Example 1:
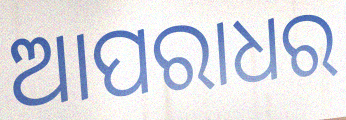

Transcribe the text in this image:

ଆପରାଧର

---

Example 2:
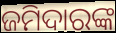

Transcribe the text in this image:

ଜମିଦାରଙ୍କ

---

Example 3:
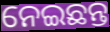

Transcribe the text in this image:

ନେଇଛନ୍ତ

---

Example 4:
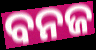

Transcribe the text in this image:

ବନଜ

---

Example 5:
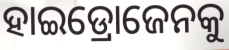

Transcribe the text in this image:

ହାଇଡ୍ରୋଜେନକୁ